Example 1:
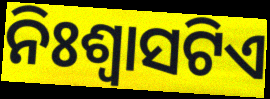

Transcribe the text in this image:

ନିଃଶ୍ୱାସଟିଏ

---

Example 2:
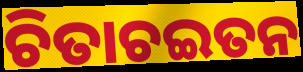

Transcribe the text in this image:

ଚିତାଚଇତନ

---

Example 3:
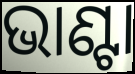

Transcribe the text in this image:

ଭାଣ୍ଟା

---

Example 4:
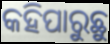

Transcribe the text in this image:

କହିପାରୁଛୁ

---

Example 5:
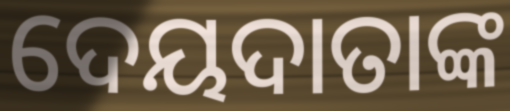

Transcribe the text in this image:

ଦେୟଦାତାଙ୍କ